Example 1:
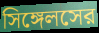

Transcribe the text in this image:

সিঙ্গেলসের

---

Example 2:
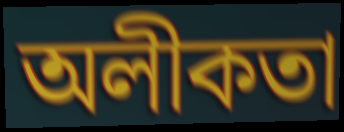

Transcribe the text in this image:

অলীকতা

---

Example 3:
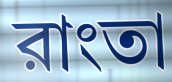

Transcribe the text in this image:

রাংতা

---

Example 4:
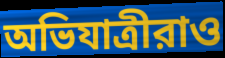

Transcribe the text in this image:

অভিযাত্রীরাও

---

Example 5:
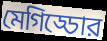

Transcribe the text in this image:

মেগিড্ডোর